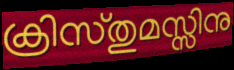
ക്രിസ്തുമസ്സിനു